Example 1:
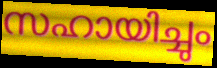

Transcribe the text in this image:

സഹായിച്ചും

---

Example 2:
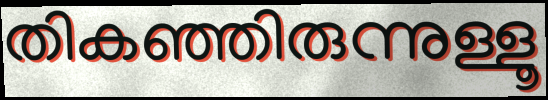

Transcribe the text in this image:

തികഞ്ഞിരുന്നുള്ളൂ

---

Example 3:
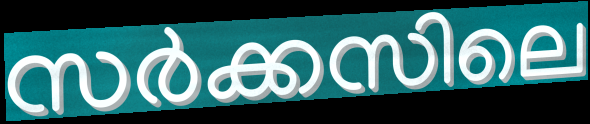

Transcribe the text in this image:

സർക്കസിലെ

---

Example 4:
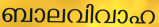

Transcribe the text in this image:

ബാലവിവാഹ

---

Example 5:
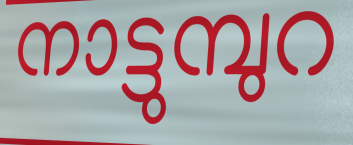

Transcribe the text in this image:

നാട്ടുമ്പുറ